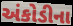
અંકોડીના